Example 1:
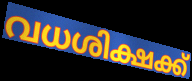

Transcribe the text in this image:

വധശിക്ഷക്ക്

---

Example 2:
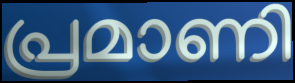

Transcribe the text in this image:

പ്രമാണി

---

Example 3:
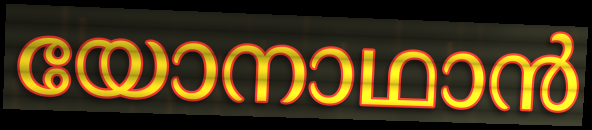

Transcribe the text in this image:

യോനാഥാൻ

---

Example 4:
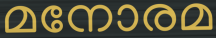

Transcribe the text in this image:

മനോരമ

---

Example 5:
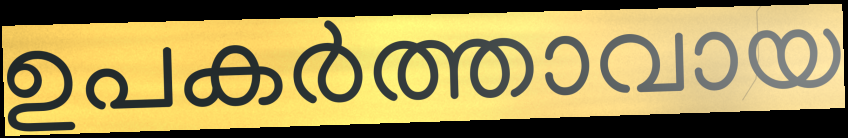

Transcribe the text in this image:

ഉപകർത്താവായ